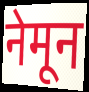
नेमून